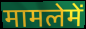
मामलेमें